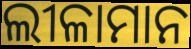
ଲୀଳାମାନ